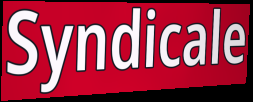
Syndicale